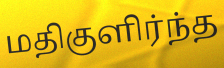
மதிகுளிர்ந்த